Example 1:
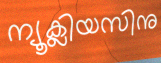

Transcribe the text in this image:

ന്യൂക്ലിയസിനു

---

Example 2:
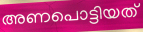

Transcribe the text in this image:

അണപൊട്ടിയത്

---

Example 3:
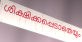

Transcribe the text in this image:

ശിക്ഷിക്കപ്പെടാതെയും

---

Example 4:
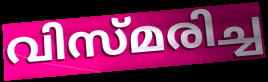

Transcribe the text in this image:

വിസ്മരിച്ച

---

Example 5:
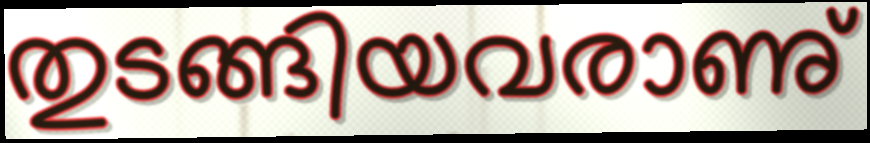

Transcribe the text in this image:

തുടങ്ങിയവരാണു്